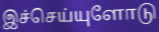
இச்செய்யுளோடு